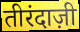
तीरंदाज़ी